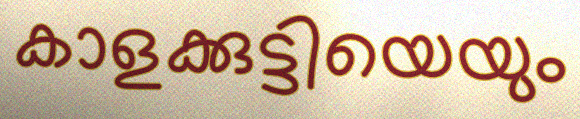
കാളക്കുട്ടിയെയും